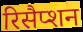
रिसैप्शन